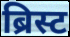
ब्रिस्ट